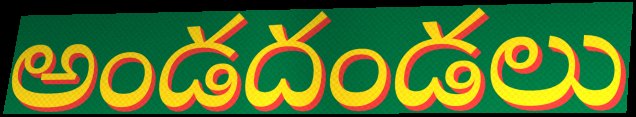
అండదండలు